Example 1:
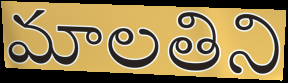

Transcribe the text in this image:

మాలతిని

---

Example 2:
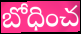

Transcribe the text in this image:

బోధించ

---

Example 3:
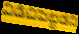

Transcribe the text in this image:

విడిచిపెట్టడని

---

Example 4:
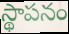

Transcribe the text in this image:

స్థాపనం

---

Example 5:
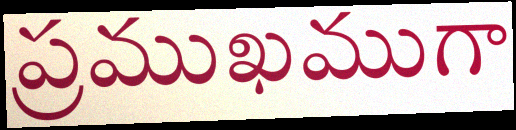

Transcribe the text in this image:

ప్రముఖముగా